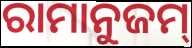
ରାମାନୁଜମ୍